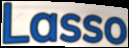
Lasso